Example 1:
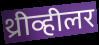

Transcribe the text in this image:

थ्रीव्हीलर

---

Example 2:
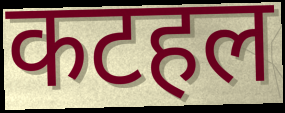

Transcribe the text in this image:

कटहल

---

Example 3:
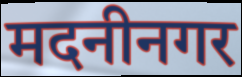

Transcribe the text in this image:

मदनीनगर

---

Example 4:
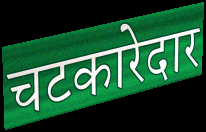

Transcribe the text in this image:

चटकारेदार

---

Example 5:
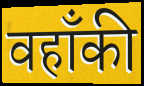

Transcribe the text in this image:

वहाँकी